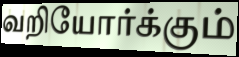
வறியோர்க்கும்